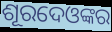
ଶୂରଦେଓଙ୍କର